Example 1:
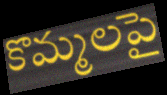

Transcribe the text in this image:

కొమ్మలపై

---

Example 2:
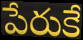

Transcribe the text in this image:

పేరుకే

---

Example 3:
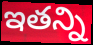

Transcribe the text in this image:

ఇతన్ని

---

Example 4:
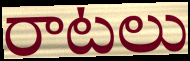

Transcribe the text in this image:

రాటలు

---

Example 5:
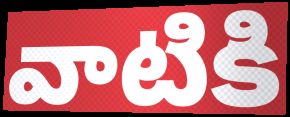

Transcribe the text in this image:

వాటికి